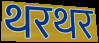
थरथर